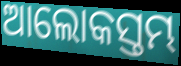
ଆଲୋକସ୍ତମ୍ଭ